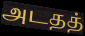
அடதத்